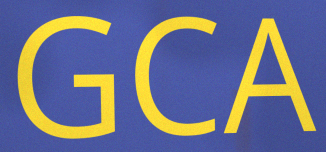
GCA